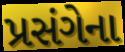
પ્રસંગેના